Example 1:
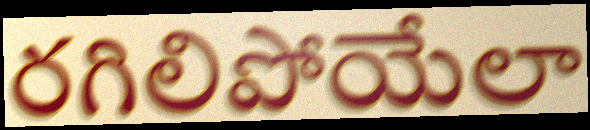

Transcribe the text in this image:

రగిలిపోయేలా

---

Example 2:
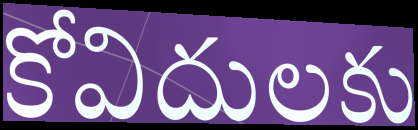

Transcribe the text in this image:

కోవిదులకు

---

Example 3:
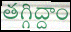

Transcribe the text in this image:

తగ్గిద్దాం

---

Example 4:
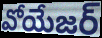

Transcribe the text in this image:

వోయేజర్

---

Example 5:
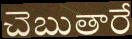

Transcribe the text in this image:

చెబుతారే